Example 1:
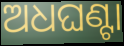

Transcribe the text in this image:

ଅଧଘଣ୍ଟା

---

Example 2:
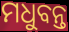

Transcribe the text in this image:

ମଧୁବନ୍ତ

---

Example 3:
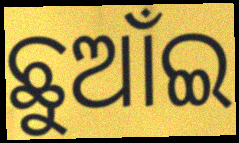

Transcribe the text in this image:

ଛୁଆଁଇ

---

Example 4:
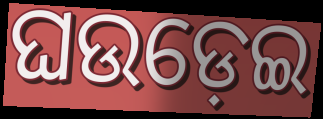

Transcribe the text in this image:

ଘଉଡ଼େଇ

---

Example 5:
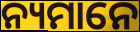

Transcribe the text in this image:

ନ୍ୟମାନେ